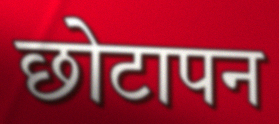
छोटापन